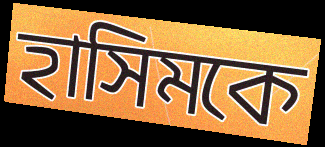
হাসিমকে